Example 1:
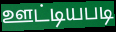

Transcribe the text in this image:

ஊட்டியபடி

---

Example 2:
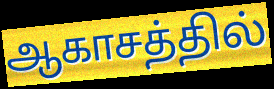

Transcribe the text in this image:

ஆகாசத்தில்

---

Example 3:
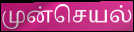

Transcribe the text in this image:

முன்செயல்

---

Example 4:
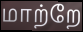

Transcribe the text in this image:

மாற்றே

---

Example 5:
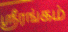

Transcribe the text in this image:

ஸ்ரீரங்கம்